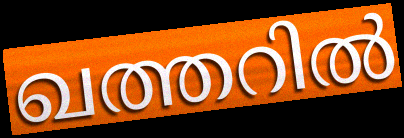
ഖത്തറിൽ